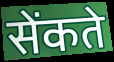
सेंकते